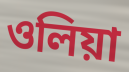
ওলিয়া